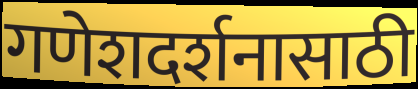
गणेशदर्शनासाठी